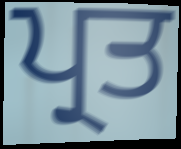
ਪ੍ਰਤ